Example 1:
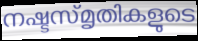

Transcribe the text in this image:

നഷ്ടസ്മൃതികളുടെ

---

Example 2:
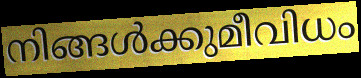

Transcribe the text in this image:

നിങ്ങൾക്കുമീവിധം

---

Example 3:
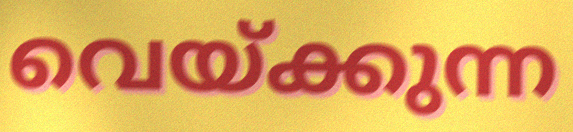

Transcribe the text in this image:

വെയ്ക്കുന്ന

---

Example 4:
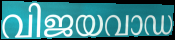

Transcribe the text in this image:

വിജയവാഡ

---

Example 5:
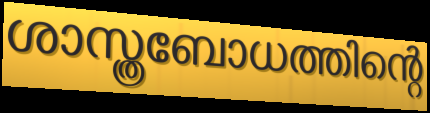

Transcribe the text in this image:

ശാസ്ത്രബോധത്തിന്റെ